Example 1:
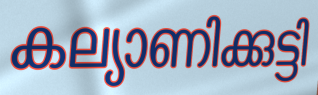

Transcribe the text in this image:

കല്യാണിക്കുട്ടി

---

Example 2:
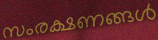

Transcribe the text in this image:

സംരക്ഷണങ്ങൾ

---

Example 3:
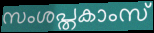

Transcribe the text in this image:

സംശപ്തകാംസ്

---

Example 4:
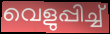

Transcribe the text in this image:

വെളുപ്പിച്ച്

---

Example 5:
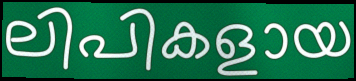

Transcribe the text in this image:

ലിപികളായ